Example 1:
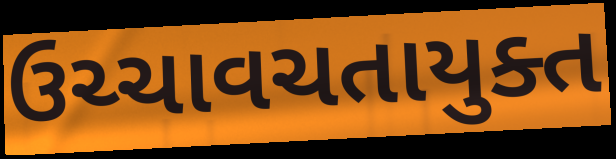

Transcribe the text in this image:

ઉચ્ચાવચતાયુક્ત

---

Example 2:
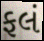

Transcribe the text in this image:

ફલં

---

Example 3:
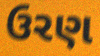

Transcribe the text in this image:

ઉરણ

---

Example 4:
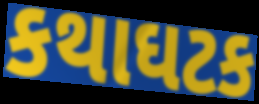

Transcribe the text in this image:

કથાઘટક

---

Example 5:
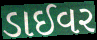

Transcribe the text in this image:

ડાઈવર